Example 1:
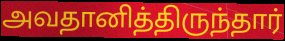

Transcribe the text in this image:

அவதானித்திருந்தார்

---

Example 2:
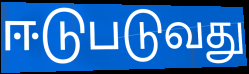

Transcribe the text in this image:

ஈடுபடுவது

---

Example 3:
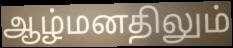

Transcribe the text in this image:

ஆழ்மனதிலும்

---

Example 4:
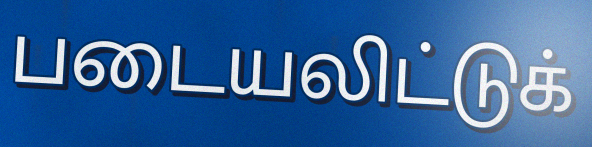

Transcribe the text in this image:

படையலிட்டுக்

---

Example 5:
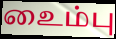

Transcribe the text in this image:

உைம்பு